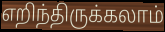
எறிந்திருக்கலாம்